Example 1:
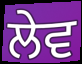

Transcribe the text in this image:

ਲੇਵ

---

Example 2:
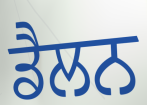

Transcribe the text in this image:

ਡੈਲਨ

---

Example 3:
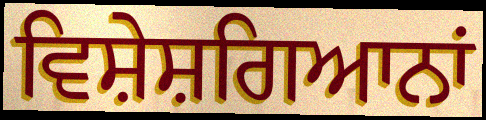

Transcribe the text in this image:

ਵਿਸ਼ੇਸ਼ਗਿਆਨਾਂ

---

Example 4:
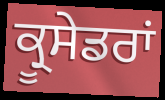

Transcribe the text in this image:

ਕ੍ਰੂਸੇਡਰਾਂ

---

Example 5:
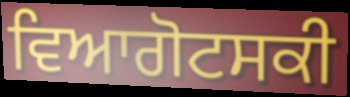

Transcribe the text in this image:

ਵਿਆਗੋਟਸਕੀ